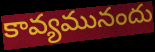
కావ్యమునందు